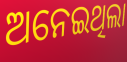
ଅନେଇଥିଲା